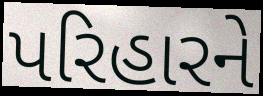
પરિહારને